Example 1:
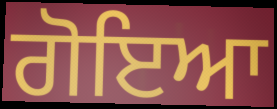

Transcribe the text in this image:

ਗੋਇਆ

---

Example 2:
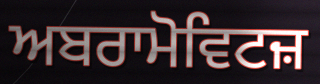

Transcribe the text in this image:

ਅਬਰਾਮੋਵਿਟਜ਼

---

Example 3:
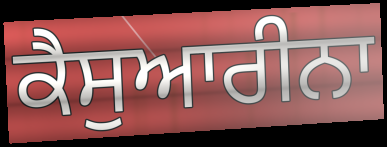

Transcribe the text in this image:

ਕੈਸੁਆਰੀਨਾ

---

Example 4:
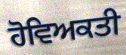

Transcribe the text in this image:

ਹੋਵਿਅਕਤੀ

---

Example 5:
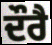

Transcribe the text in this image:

ਦੌਰੈ